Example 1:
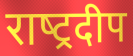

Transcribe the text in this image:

राष्ट्रदीप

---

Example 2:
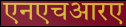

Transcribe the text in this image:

एनएचआरए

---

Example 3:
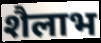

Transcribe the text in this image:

शैलाभ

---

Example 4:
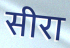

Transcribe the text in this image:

सीरा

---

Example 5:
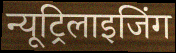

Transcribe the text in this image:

न्यूट्रिलाइजिंग